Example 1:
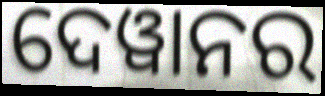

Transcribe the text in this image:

ଦେୱାନର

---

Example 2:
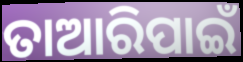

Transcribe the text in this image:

ତାଆରିପାଇଁ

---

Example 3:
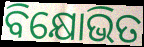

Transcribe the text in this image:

ବିକ୍ଷୋଭିତ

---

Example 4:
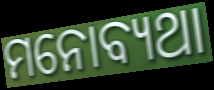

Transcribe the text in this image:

ମନୋବ୍ୟଥା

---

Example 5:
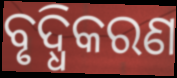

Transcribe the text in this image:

ବୃଦ୍ଧିକରଣ